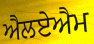
ਐਲਏਐਮ